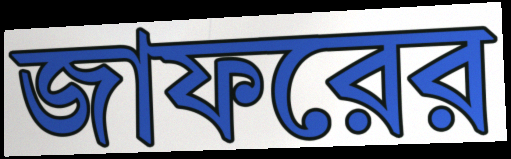
জাফরের